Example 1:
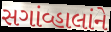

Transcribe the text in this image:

સગાંવ્હાલાંને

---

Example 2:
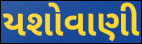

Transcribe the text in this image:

યશોવાણી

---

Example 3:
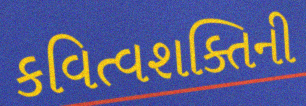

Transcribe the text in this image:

કવિત્વશક્તિની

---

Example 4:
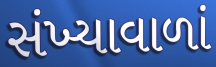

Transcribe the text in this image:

સંખ્યાવાળાં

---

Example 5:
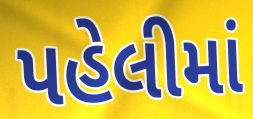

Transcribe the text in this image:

પહેલીમાં